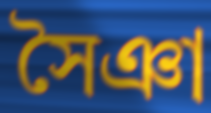
সৈঞা